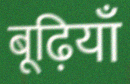
बूढ़ियाँ